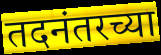
तदनंतरच्या